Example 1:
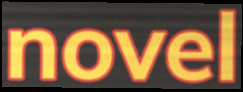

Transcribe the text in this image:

novel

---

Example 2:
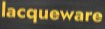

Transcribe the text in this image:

lacqueware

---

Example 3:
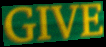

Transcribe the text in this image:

GIVE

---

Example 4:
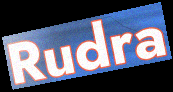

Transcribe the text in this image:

Rudra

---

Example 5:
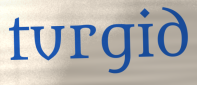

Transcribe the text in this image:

turgid